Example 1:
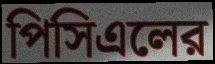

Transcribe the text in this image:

পিসিএলের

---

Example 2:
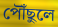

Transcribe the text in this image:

পৌঁছুলে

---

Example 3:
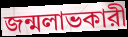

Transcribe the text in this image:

জন্মলাভকারী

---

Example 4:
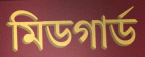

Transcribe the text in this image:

মিডগার্ড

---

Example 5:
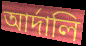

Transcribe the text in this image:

আর্দালি